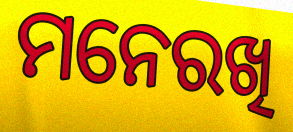
ମନେରଖି